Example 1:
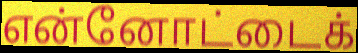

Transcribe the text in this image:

என்னோட்டைக்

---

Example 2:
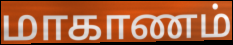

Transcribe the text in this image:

மாகாணம்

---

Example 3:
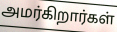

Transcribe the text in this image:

அமர்கிறார்கள்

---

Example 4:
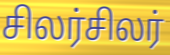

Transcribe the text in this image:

சிலர்சிலர்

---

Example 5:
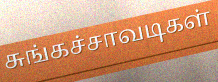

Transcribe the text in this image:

சுங்கச்சாவடிகள்